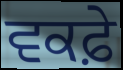
ਵਕਫ਼ੇ